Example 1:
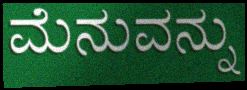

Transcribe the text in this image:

ಮೆನುವನ್ನು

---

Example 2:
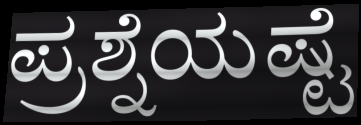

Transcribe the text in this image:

ಪ್ರಶ್ನೆಯಷ್ಟೆ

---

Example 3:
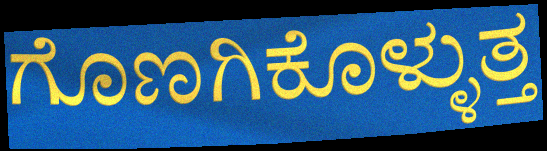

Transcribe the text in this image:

ಗೊಣಗಿಕೊಳ್ಳುತ್ತ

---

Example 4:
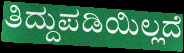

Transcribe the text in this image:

ತಿದ್ದುಪಡಿಯಿಲ್ಲದೆ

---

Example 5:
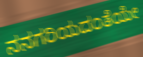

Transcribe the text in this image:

ನನಗರಿಯದಂತೆಯೇ